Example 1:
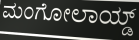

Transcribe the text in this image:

ಮಂಗೋಲಾಯ್ಡ್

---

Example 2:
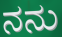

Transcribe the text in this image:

ನನು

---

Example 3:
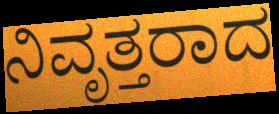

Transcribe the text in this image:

ನಿವೃತ್ತರಾದ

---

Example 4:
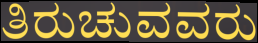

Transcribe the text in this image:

ತಿರುಚುವವರು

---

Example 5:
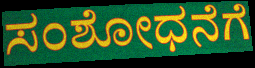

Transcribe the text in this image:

ಸಂಶೋಧನೆಗೆ